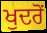
ਖੁਦਰੋਂ